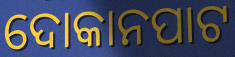
ଦୋକାନପାଟ